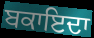
ਬਕਾਇਦਾ